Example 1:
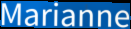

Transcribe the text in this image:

Marianne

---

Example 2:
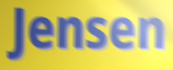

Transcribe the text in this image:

Jensen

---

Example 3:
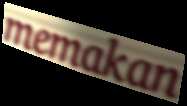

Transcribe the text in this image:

memakan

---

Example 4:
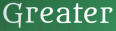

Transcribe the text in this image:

Greater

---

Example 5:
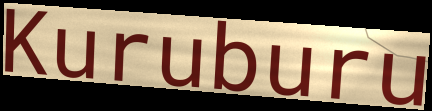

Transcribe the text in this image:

Kuruburu